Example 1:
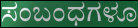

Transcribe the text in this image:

ಸಂಬಂಧಗಳೂ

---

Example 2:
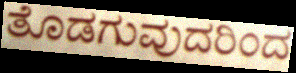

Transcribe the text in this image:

ತೊಡಗುವುದರಿಂದ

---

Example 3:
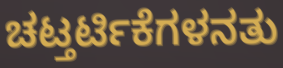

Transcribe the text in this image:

ಚಟ್ತರ್ಟಿಕೆಗಳನತು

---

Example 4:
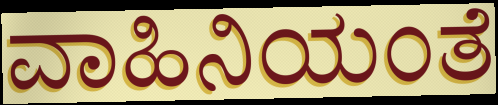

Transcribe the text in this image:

ವಾಹಿನಿಯಂತೆ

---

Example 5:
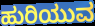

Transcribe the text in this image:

ಹುರಿಯುವ